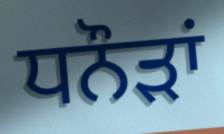
ਧਨੌੜਾਂ